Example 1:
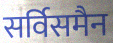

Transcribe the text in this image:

सर्विसमैन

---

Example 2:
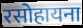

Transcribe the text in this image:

रसोहायना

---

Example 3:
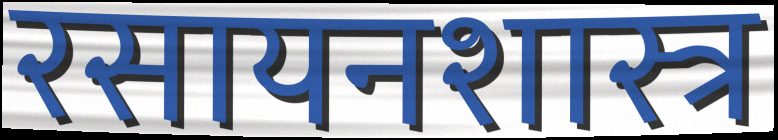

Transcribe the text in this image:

रसायनशास्त्र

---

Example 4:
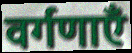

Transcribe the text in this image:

वर्गणाएँ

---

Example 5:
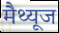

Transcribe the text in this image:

मैथ्‍यूज